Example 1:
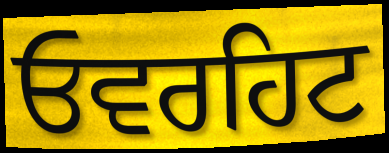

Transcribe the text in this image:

ਓਵਰਹਿਟ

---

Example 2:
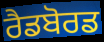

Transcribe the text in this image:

ਰੈਡਬੋਰਡ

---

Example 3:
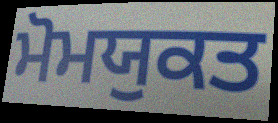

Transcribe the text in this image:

ਮੋਮਯੁਕਤ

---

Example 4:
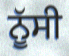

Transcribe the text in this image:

ਨੂੱਸੀ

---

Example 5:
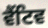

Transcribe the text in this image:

ਵੈਂਟਿਵ